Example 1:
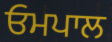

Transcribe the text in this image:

ਓਮਪਾਲ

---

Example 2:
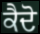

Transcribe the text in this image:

ਕੈਦੋ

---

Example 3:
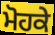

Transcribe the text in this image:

ਮੋਹਕੇ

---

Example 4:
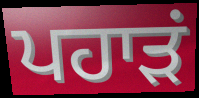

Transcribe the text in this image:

ਪਹਾੜਂ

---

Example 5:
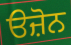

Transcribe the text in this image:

ੳਜ਼ੋਨ